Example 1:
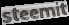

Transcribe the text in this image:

steemit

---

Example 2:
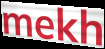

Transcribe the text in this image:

mekh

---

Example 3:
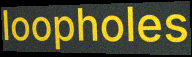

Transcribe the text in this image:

loopholes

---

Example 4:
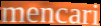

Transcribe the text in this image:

mencari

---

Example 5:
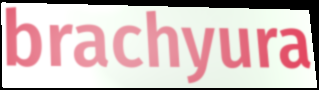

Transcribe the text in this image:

brachyura